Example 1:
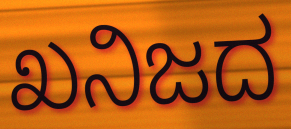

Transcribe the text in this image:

ಖನಿಜದ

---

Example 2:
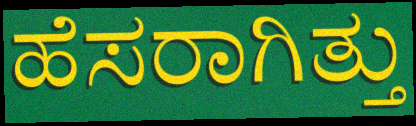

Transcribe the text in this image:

ಹೆಸರಾಗಿತ್ತು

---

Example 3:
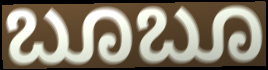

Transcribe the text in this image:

ಬೂಬೂ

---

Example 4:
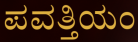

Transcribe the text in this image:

ಪವತ್ತಿಯಂ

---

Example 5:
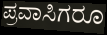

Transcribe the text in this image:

ಪ್ರವಾಸಿಗರೂ